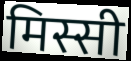
मिस्सी